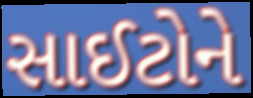
સાઈટોને